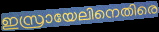
ഇസ്രായേലിനെതിരെ